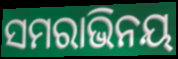
ସମରାଭିନୟ